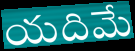
యదిమే